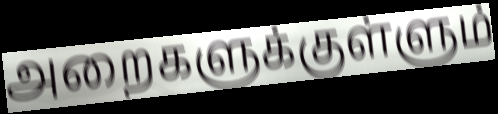
அறைகளுக்குள்ளும்